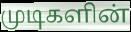
முடிகளின்